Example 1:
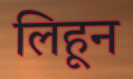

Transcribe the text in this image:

लिहून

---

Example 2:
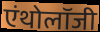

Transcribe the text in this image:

एंथोलॉजी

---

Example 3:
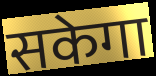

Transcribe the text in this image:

सकेगा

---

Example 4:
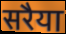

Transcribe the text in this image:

सरैया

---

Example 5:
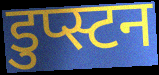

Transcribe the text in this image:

डुप्स्टन